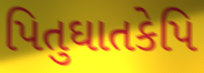
પિતુઘાતકેપિ